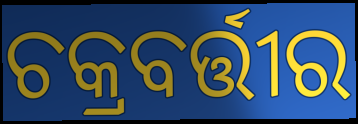
ଚକ୍ରବର୍ତ୍ତୀର